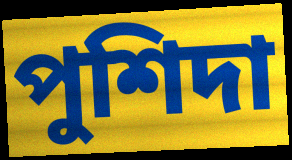
পুশিদা